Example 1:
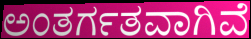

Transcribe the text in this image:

ಅಂತರ್ಗತವಾಗಿವೆ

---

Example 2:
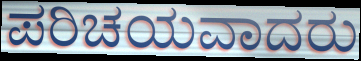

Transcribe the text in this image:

ಪರಿಚಯವಾದರು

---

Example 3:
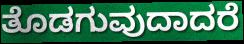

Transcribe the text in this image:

ತೊಡಗುವುದಾದರೆ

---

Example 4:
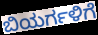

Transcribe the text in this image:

ಬಿಯರ್ಗಳಿಗೆ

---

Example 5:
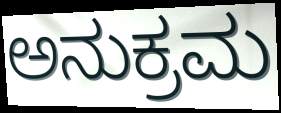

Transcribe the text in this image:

ಅನುಕ್ರಮ